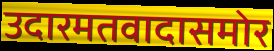
उदारमतवादासमोर